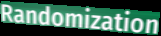
Randomization